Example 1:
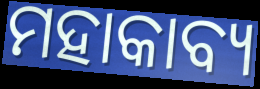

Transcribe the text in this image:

ମହାକାବ୍ୟ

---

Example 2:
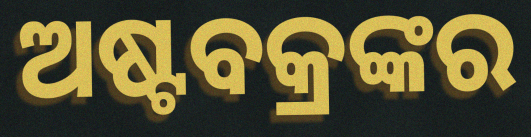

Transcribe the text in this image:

ଅଷ୍ଟବକ୍ରଙ୍କର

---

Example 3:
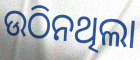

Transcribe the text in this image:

ଉଠିନଥିଲା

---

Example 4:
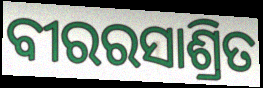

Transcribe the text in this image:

ବୀରରସାଶ୍ରିତ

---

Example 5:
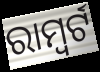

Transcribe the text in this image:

ରାମ୍ବର୍ଟ